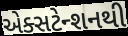
એક્સટેન્શનથી